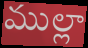
ముల్లా